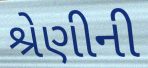
શ્રેણીની